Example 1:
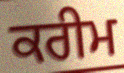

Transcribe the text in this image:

ਕਰੀਮ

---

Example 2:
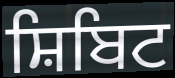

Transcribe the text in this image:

ਸ਼ਿਬਿਟ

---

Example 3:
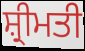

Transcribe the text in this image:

ਸ਼੍ਰੀਮਤੀ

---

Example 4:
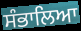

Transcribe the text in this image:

ਸੰਭਾਲਿਆ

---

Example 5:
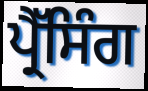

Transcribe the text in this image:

ਪ੍ਰੈੱਸਿੰਗ